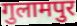
गुलामपुर